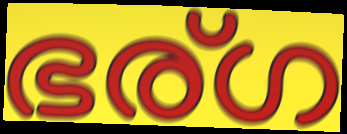
ഭര്ഗ